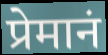
प्रेमानं